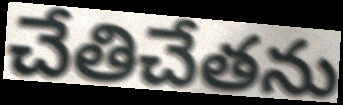
చేతిచేతను